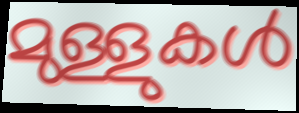
മുള്ളുകൾ